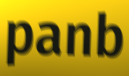
panb